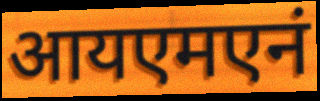
आयएमएनं